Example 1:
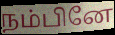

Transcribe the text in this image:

நம்பினே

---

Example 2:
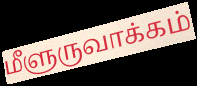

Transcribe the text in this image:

மீளுருவாக்கம்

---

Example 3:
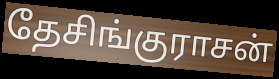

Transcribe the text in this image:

தேசிங்குராசன்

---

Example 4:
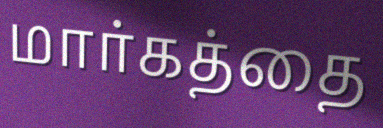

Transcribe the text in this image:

மார்கத்தை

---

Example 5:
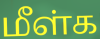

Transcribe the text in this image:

மீள்க